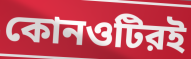
কোনওটিরই